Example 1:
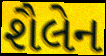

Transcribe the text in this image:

શૈલેન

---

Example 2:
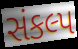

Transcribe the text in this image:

સંકલ્પ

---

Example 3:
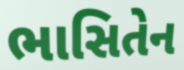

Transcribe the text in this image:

ભાસિતેન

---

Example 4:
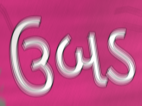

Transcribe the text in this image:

ઉબડ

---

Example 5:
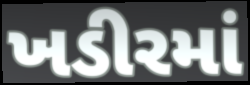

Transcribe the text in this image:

ખડીરમાં